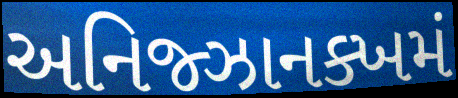
અનિજ્ઝાનક્ખમં